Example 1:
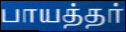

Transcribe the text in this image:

பாயத்தர்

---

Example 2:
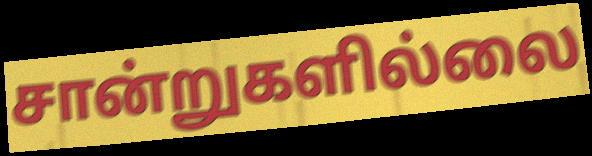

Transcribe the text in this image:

சான்றுகளில்லை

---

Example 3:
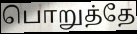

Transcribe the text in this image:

பொறுத்தே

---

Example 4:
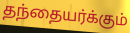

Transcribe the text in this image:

தந்தையர்க்கும்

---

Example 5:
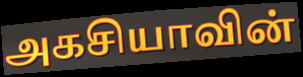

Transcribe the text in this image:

அகசியாவின்